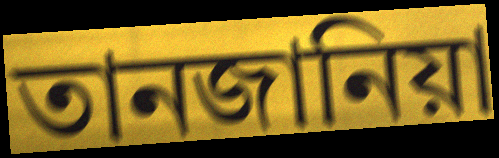
তানজানিয়া